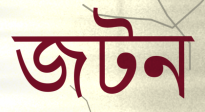
জটন